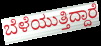
ಬೆಳೆಯುತ್ತಿದ್ದಾರೆ